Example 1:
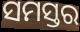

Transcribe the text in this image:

ସମସ୍ତର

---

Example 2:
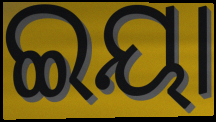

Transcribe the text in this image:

ଇୟା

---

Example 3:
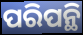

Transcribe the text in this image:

ପରିପନ୍ଥି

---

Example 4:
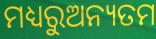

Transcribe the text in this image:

ମଧ୍ୟରୁଅନ୍ୟତମ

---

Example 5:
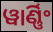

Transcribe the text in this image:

ୱାର୍ଣ୍ଣିଂ